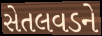
સેતલવડને